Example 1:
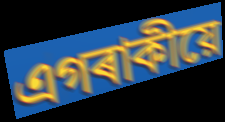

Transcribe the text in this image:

এগৰাকীয়ে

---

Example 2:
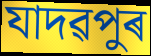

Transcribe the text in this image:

যাদৱপুৰ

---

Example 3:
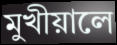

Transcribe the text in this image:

মুখীয়ালে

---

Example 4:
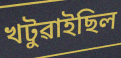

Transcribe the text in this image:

খটুৱাইছিল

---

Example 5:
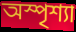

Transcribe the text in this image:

অস্পৃশ্যা